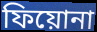
ফিয়োনা